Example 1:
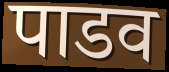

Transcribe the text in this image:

पाडव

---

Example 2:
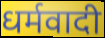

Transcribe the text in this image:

धर्मवादी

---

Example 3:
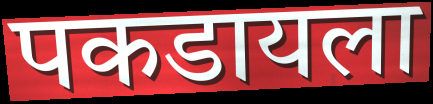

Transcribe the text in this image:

पकडायला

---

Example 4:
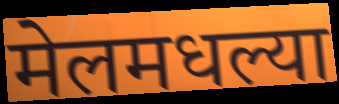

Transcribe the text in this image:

मेलमधल्या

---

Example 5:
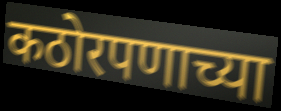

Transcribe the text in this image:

कठोरपणाच्या